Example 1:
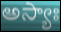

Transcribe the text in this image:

అస్యాః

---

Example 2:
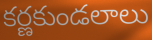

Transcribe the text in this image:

కర్ణకుండలాలు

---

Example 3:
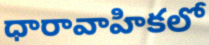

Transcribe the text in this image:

ధారావాహికలో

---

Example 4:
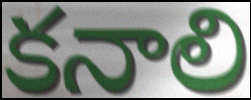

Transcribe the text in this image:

కనాలి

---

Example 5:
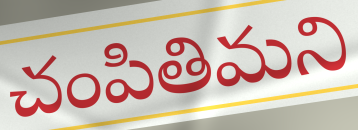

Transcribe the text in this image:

చంపితిమని